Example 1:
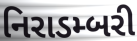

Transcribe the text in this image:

નિરાડમ્બરી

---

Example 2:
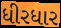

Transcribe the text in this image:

ધીરધાર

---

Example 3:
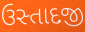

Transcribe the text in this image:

ઉસ્તાદજી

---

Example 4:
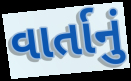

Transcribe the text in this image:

વાર્તાનું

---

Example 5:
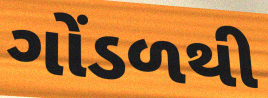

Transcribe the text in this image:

ગોંડળથી